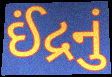
ઈંદ્રનું